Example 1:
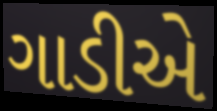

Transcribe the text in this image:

ગાડીએ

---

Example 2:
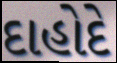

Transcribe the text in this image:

દાહોદે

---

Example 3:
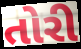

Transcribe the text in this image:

તોરી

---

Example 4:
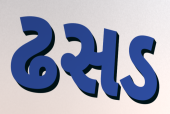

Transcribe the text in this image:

ઢસડ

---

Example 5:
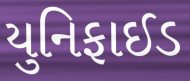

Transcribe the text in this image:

યુનિફાઈડ